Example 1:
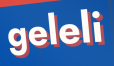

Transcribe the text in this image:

geleli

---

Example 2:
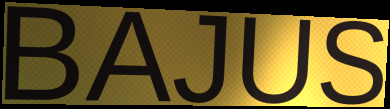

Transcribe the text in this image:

BAJUS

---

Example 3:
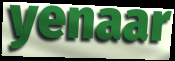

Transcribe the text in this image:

yenaar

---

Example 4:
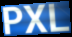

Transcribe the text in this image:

PXL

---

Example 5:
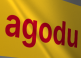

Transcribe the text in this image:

agodu